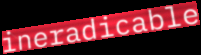
ineradicable